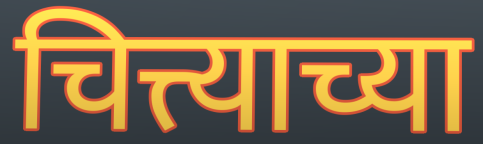
चित्त्याच्या